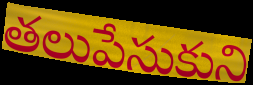
తలుపేసుకుని